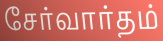
சேர்வார்தம்